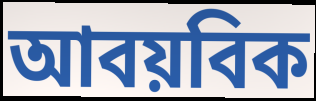
আবয়বিক